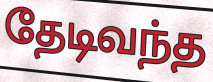
தேடிவந்த